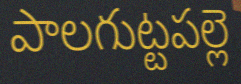
పాలగుట్టపల్లె